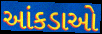
આંકડાઓ